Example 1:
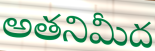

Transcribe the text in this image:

అతనిమీద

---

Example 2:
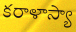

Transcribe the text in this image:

కరాళాస్యా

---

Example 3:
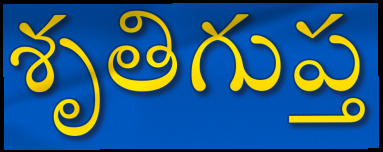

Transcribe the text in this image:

శృతిగుప్త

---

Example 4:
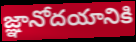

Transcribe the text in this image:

జ్ఞానోదయానికి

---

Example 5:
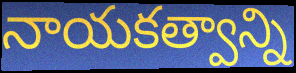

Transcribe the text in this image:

నాయకత్వాన్ని